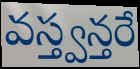
వస్త్వన్తరే